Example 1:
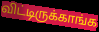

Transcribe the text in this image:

விட்டிருக்காங்க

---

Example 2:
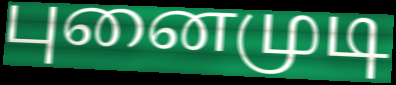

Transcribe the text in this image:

புனைமுடி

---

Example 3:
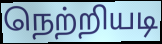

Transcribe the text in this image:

நெற்றியடி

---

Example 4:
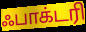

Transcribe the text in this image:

ஃபாக்டரி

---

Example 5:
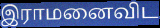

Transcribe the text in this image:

இராமனைவிட